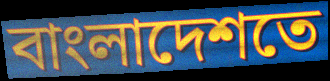
বাংলাদেশতে